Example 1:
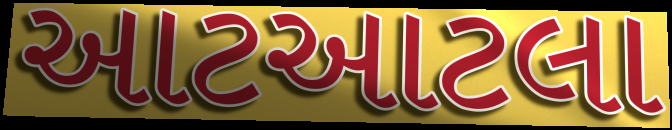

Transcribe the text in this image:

આટઆટલા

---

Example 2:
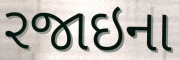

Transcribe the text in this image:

રજાઇના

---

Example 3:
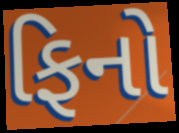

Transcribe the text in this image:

ફિનો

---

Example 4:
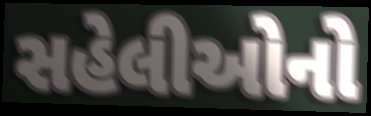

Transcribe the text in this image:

સહેલીઓનો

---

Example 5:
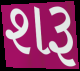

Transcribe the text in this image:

શરૂ